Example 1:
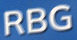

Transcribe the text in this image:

RBG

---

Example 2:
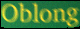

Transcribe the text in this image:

Oblong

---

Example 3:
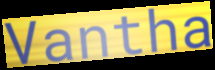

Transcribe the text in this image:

Vantha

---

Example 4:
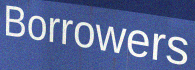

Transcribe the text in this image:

Borrowers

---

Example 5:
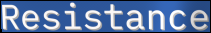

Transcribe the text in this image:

Resistance